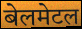
बेलमेटल